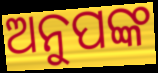
ଅନୁପଙ୍କ